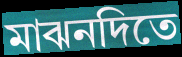
মাঝনদিতে